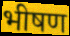
भीषण